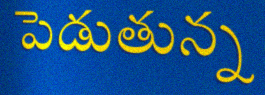
పెడుతున్న